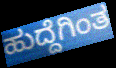
ಹುದ್ದೆಗಿಂತ